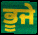
ਭੂਜੇ